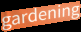
gardening